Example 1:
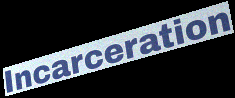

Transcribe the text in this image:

Incarceration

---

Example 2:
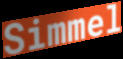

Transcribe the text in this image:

Simmel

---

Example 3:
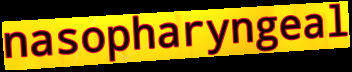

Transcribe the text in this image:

nasopharyngeal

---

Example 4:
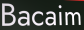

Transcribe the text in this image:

Bacaim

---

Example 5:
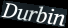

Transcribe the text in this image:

Durbin